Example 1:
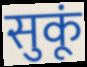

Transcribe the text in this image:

सुकूं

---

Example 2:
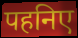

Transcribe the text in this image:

पहनिए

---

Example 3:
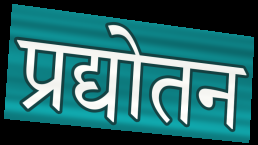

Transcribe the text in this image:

प्रद्योतन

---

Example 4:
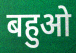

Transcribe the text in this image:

बहुओ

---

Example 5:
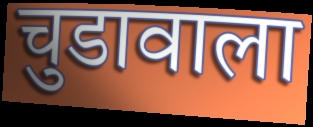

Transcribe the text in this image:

चुडावाला